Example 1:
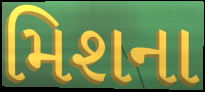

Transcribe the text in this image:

મિશના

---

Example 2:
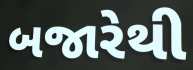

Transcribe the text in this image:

બજારેથી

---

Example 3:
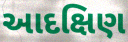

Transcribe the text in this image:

આદક્ષિણ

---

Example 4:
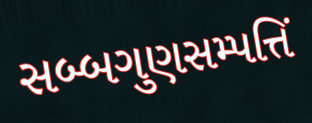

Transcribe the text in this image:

સબ્બગુણસમ્પત્તિં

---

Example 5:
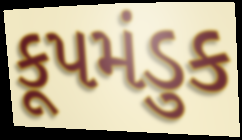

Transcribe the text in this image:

કૂપમંડુક